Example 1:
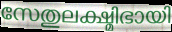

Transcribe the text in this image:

സേതുലക്ഷ്മിഭായി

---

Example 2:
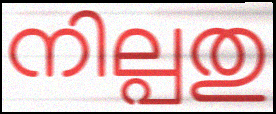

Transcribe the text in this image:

നില്പതു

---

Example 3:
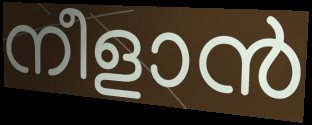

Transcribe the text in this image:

നീളാൻ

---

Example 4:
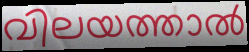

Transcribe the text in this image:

വിലയത്താൽ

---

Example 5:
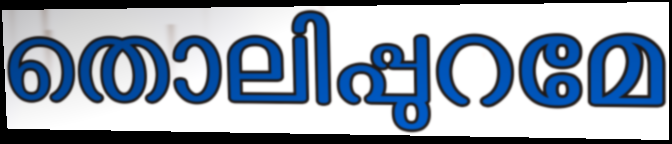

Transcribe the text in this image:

തൊലിപ്പുറമേ